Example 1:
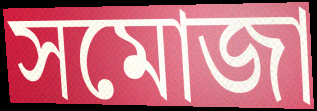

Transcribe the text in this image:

সমোজা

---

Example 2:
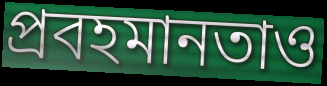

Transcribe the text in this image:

প্রবহমানতাও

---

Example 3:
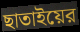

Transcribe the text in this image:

ছাতাইয়ের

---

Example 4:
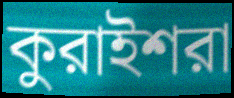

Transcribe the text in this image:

কুরাইশরা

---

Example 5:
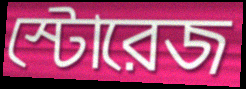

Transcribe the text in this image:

স্টোরেজ